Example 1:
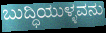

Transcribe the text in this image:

ಬುದ್ಧಿಯುಳ್ಳವನು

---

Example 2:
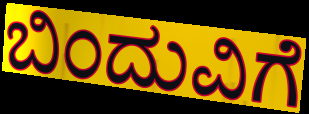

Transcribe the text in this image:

ಬಿಂದುವಿಗೆ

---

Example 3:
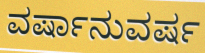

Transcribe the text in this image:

ವರ್ಷಾನುವರ್ಷ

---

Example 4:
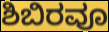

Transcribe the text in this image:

ಶಿಬಿರವೂ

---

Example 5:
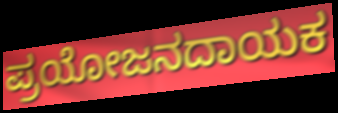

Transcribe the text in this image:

ಪ್ರಯೋಜನದಾಯಕ